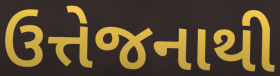
ઉત્તેજનાથી